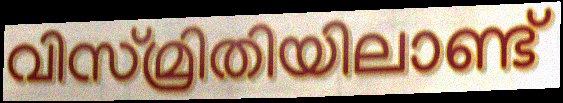
വിസ്മ്രിതിയിലാണ്ട്